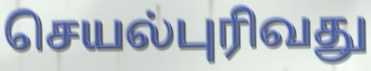
செயல்புரிவது